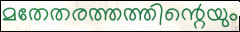
മതേതരത്തത്തിന്റെയും